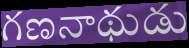
గణనాథుడు